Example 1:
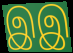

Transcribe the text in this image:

இஇ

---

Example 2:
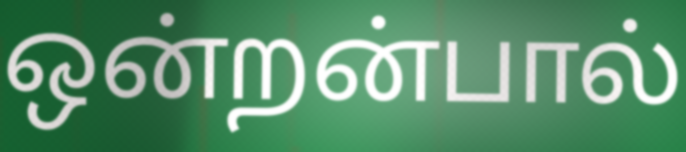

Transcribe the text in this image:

ஒன்றன்பால்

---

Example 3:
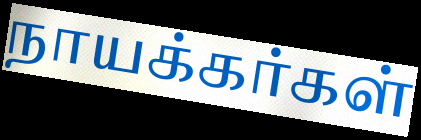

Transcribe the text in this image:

நாயக்கர்கள்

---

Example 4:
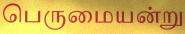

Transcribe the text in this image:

பெருமையன்று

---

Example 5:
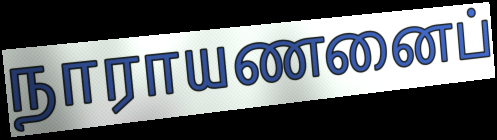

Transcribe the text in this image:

நாராயணனைப்